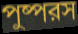
পুষ্পরস